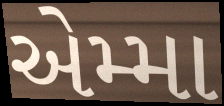
એમ્મા